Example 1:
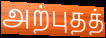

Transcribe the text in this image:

அற்புதத்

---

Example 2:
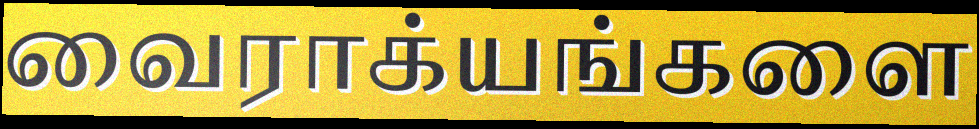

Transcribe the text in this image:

வைராக்யங்களை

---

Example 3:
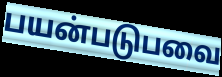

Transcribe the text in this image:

பயன்படுபவை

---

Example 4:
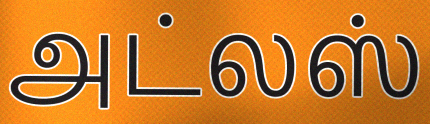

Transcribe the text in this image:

அட்லஸ்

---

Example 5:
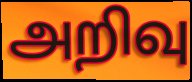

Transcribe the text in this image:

அறிவு